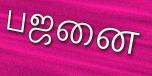
பஜனை